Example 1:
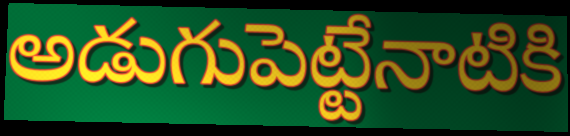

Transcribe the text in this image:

అడుగుపెట్టేనాటికి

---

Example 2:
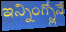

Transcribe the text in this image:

ఇన్నింగ్స్లోనే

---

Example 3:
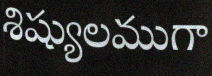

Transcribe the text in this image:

శిష్యులముగా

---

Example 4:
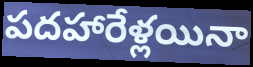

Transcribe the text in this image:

పదహారేళ్లయినా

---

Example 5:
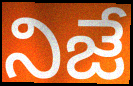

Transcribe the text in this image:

నిజే